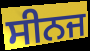
ਸੀਨਜ